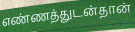
எண்ணத்துடன்தான்